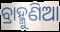
ବ୍ରାହ୍ମୁଣିଆ